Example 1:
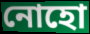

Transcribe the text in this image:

নোহো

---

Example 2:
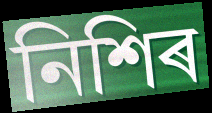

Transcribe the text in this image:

নিশিৰ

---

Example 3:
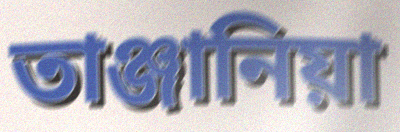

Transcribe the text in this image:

তাঞ্জানিয়া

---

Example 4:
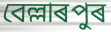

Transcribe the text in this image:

বেল্লাৰপুৰ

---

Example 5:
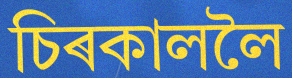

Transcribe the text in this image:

চিৰকাললৈ